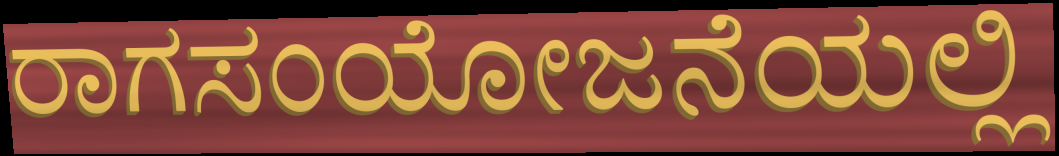
ರಾಗಸಂಯೋಜನೆಯಲ್ಲಿ